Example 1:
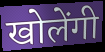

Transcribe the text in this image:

खोलेंगी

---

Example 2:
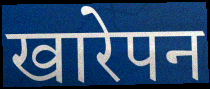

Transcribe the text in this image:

खारेपन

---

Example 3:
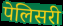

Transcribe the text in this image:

पेलिसरी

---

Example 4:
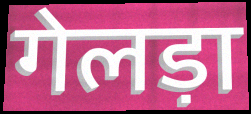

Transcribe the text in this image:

गेलड़ा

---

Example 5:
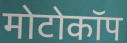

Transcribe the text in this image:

मोटोकॉप